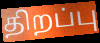
திறப்பு